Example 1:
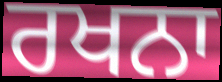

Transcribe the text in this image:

ਰਖਨਾ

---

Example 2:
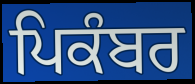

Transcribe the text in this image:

ਪਿਕੰਬਰ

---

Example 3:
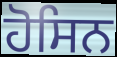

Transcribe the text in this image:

ਹੋਸਿਨ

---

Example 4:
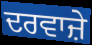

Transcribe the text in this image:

ਦਰਵਾਜ਼ੇ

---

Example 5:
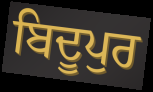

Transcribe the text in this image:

ਬਿਦੂਪੁਰ